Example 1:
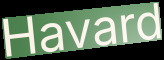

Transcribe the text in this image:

Havard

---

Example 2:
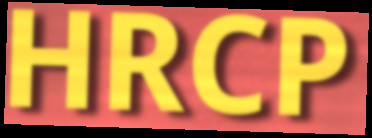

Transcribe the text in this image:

HRCP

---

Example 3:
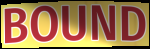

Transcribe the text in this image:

BOUND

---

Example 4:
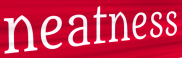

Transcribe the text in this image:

neatness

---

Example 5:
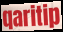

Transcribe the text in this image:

qaritip